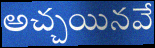
అచ్చయినవే